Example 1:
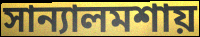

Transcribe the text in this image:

সান্যালমশায়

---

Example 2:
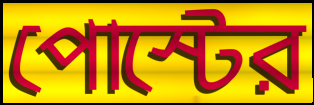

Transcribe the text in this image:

পোস্টের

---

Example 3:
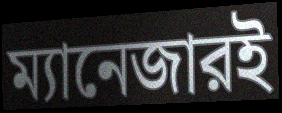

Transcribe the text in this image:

ম্যানেজারই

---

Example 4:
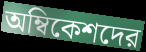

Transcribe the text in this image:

অম্বিকেশদের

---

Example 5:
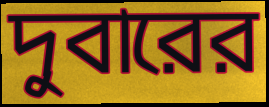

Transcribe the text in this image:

দুবারের